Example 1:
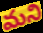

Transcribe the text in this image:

మని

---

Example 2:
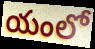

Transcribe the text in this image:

యంలో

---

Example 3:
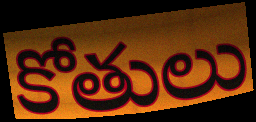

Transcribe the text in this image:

కోతులు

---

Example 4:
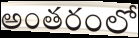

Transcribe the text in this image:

అంతరంలో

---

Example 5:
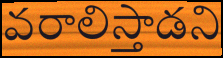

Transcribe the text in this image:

వరాలిస్తాడని